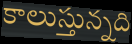
కాలుస్తున్నది